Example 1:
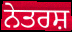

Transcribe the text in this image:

ਨੇਤਰਸ਼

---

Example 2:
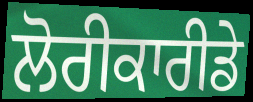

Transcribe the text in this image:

ਲੋਰੀਕਾਰੀਡੇ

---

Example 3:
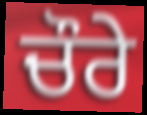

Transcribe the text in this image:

ਚੌਰੇ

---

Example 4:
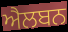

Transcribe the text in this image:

ਐਲਬਨ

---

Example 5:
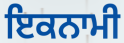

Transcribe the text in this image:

ਇਕਨਾਮੀ